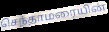
செந்தாமரையின்